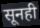
सूनही